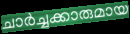
ചാർച്ചക്കാരുമായ